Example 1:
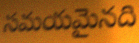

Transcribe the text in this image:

సమయమైనది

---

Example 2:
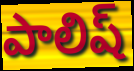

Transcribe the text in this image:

పాలిష్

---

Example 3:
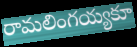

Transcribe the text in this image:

రామలింగయ్యకూ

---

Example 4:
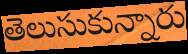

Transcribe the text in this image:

తెలుసుకున్నారు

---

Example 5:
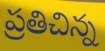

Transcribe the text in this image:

ప్రతిచిన్న